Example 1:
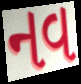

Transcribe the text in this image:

નવ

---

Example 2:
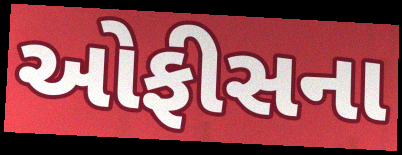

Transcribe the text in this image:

ઓફીસના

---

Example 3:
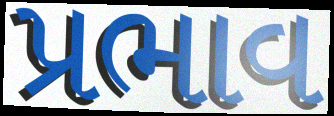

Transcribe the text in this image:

પ્રભાવ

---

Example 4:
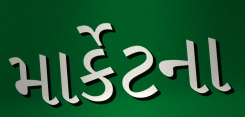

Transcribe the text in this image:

માર્કેટના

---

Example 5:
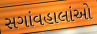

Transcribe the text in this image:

સગાંવહાલાંઓ